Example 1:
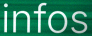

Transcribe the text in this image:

infos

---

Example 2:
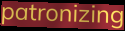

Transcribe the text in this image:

patronizing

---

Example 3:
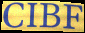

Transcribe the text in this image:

CIBF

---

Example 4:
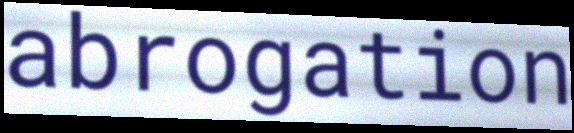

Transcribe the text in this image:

abrogation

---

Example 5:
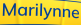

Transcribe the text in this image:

Marilynne